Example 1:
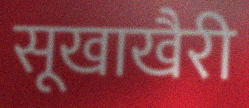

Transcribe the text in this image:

सूखाखैरी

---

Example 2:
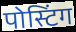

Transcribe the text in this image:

पोस्टिंग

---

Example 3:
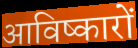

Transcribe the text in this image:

आविष्कारों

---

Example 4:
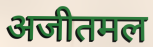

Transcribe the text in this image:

अजीतमल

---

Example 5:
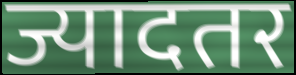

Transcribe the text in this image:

ज्यादतर